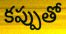
కప్పుతో